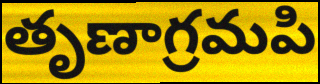
తృణాగ్రమపి